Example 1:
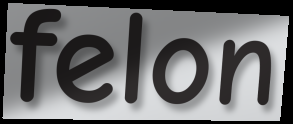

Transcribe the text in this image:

felon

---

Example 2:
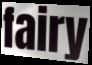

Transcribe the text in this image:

fairy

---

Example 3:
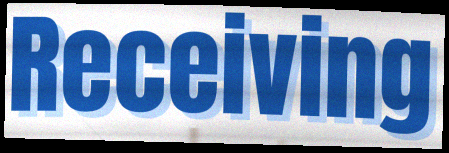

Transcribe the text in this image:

Receiving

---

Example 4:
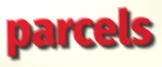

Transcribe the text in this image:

parcels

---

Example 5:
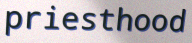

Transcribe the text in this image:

priesthood